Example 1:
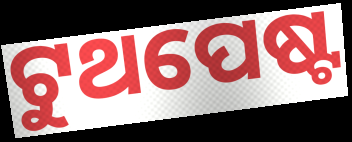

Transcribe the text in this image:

ଟୁଥପେଷ୍ଟ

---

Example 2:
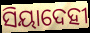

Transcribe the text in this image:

ସିୟାଦେହୀ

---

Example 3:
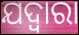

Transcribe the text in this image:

ଯଦ୍ୱାରା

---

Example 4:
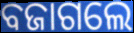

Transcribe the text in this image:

ବଜାଗଲେ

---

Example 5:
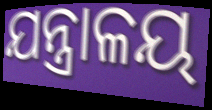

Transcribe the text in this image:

ଯନ୍ତ୍ରାଳୟ